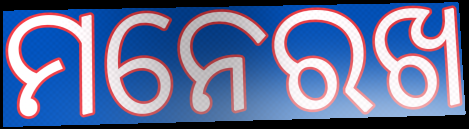
ମନେରଖ